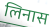
लिनास